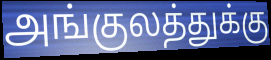
அங்குலத்துக்கு